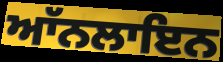
ਆੱਨਲਾਇਨ